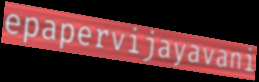
epapervijayavani